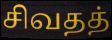
சிவதத்